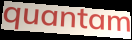
quantam